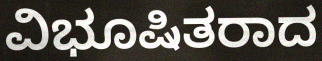
ವಿಭೂಷಿತರಾದ